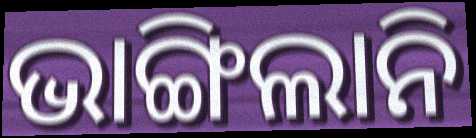
ଭାଙ୍ଗିଲାନି